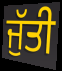
ਜੁੱਤੀ